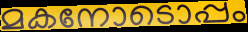
മകനോടൊപ്പം